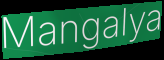
Mangalya